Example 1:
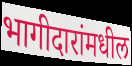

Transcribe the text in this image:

भागीदारांमधील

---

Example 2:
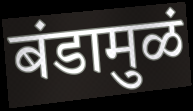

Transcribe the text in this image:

बंडामुळं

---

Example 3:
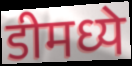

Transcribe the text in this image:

डीमध्ये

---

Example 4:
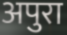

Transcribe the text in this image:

अपुरा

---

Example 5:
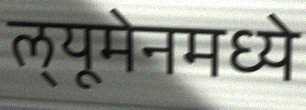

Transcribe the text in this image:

ल्यूमेनमध्ये